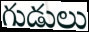
గుడులు